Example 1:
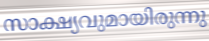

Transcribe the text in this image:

സാക്ഷ്യവുമായിരുന്നു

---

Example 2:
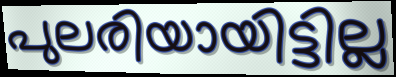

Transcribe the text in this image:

പുലരിയായിട്ടില്ല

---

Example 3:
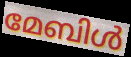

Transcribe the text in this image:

മേബിൾ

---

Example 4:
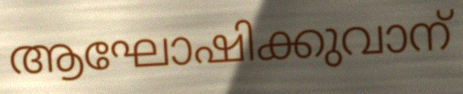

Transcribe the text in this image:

ആഘോഷിക്കുവാന്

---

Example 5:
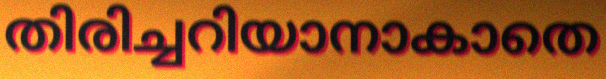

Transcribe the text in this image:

തിരിച്ചറിയാനാകാതെ